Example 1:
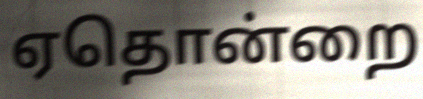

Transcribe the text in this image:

ஏதொன்றை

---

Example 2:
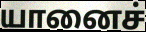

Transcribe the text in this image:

யானைச்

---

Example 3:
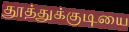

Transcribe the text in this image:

தூத்துக்குடியை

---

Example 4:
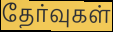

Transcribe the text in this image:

தேர்வுகள்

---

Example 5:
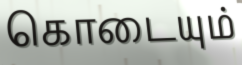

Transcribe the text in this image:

கொடையும்